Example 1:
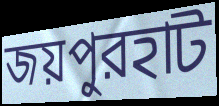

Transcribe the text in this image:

জয়পুরহাট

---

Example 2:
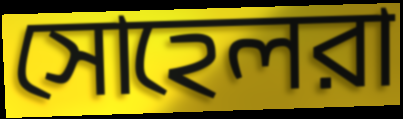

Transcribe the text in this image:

সোহেলরা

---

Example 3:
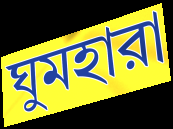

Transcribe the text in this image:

ঘুমহারা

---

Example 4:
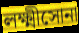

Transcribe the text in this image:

লক্ষ্মীসোনা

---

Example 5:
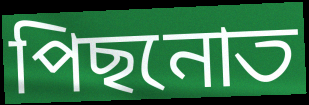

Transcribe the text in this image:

পিছনোত